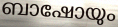
ബാഷോയും